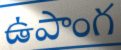
ఉపాంగ